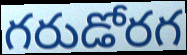
గరుడోరగ